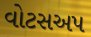
વોટસઅપ